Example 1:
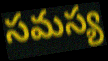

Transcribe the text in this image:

సమస్య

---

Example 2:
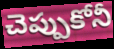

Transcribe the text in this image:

చెప్పుకోనీ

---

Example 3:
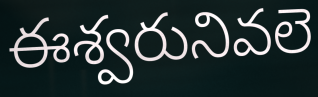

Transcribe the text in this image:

ఈశ్వరునివలె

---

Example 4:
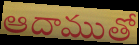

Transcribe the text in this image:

ఆదాముతో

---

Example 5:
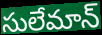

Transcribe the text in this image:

సులేమాన్